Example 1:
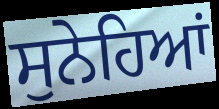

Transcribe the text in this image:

ਸੁਨੇਹਿਆਂ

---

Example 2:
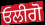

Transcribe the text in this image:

ਓਲੀਗੋ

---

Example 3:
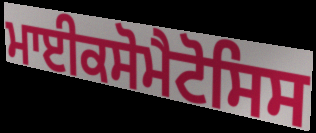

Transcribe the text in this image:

ਮਾਈਕਸੋਮੈਟੋਸਿਸ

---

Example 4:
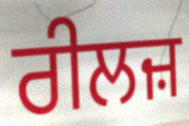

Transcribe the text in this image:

ਰੀਲਜ਼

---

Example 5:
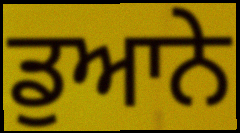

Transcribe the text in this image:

ਡੁਆਨੇ